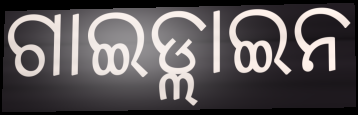
ଗାଇଡ୍ଲାଇନ